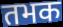
तभक